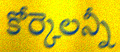
కోర్కెలన్నీ